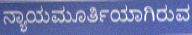
ನ್ಯಾಯಮೂರ್ತಿಯಾಗಿರುವ